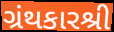
ગ્રંથકારશ્રી